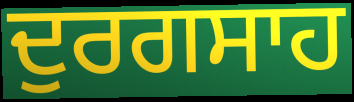
ਦੁਰਗਸਾਹ